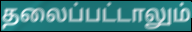
தலைப்பட்டாலும்